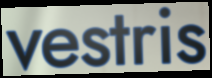
vestris